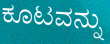
ಕೂಟವನ್ನು